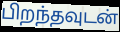
பிறந்தவுடன்